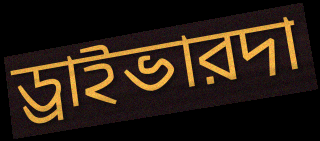
ড্রাইভারদা